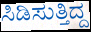
ಸಿಡಿಸುತ್ತಿದ್ದ